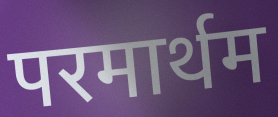
परमार्थम